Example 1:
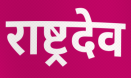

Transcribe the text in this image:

राष्ट्रदेव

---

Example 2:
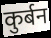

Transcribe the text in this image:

कुर्बन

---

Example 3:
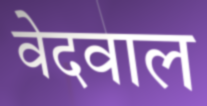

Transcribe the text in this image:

वेदवाल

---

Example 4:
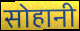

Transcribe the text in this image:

सोहानी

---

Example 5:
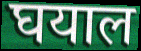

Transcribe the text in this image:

घयाल